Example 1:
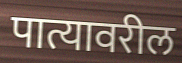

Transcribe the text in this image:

पात्यावरील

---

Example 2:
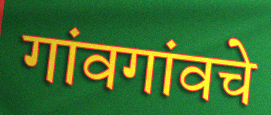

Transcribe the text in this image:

गांवगांवचे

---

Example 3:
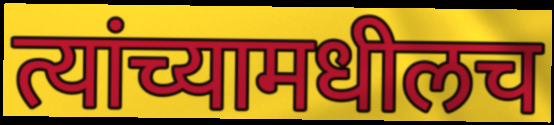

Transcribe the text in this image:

त्यांच्यामधीलच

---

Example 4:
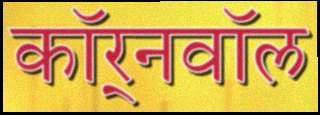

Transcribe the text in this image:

कॉर्नवॉल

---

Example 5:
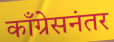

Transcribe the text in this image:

काँग्रेसनंतर